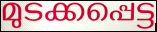
മുടക്കപ്പെട്ട